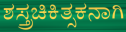
ಶಸ್ತ್ರಚಿಕಿತ್ಸಕನಾಗಿ